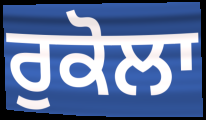
ਰੁਕੋਲਾ